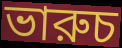
ভারুচ